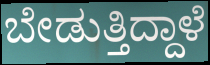
ಬೇಡುತ್ತಿದ್ದಾಳೆ